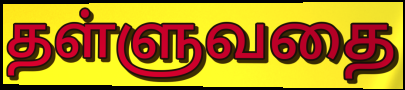
தள்ளுவதை